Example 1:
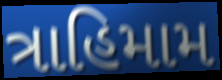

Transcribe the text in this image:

ત્રાહિમામ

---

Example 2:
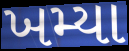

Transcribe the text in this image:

ખમ્યા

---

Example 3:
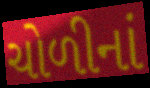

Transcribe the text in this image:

ચોળીનાં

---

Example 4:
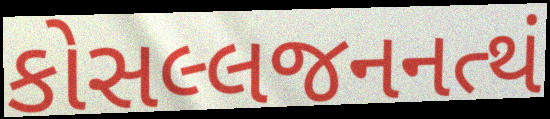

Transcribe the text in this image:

કોસલ્લજનનત્થં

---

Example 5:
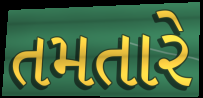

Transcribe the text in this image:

તમતારે